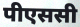
पीएससी